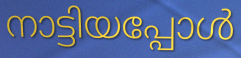
നാട്ടിയപ്പോൾ